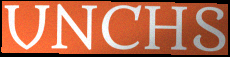
UNCHS